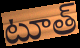
టూత్